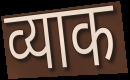
व्याक